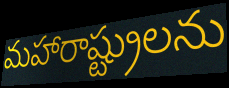
మహారాష్ట్రులను